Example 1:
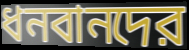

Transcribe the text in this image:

ধনবানদের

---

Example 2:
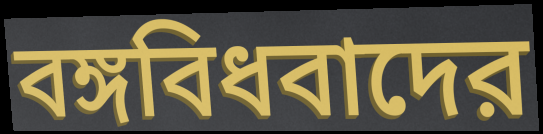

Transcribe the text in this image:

বঙ্গবিধবাদের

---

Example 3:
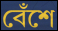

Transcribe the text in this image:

বেঁশে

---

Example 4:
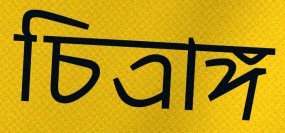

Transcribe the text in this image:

চিত্রাঙ্গ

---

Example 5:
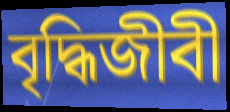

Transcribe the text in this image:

বৃদ্ধিজীবী